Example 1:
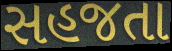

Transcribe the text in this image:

સહજતા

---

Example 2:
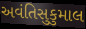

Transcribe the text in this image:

અવંતિસુકુમાલ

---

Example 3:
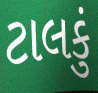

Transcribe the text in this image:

ટાલકું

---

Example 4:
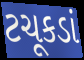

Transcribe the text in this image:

ટચૂકડાં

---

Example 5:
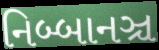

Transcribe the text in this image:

નિબ્બાનઞ્ચ